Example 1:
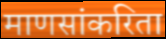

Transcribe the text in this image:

माणसांकरिता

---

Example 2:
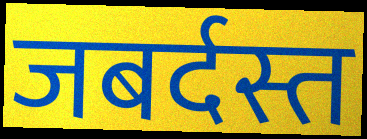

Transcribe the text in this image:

जबर्दस्त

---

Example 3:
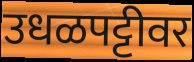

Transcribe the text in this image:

उधळपट्टीवर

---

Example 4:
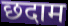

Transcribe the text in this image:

छदाम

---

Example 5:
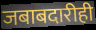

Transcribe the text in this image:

जबाबदारीही